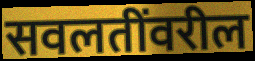
सवलतींवरील